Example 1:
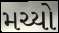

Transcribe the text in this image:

મચ્યો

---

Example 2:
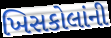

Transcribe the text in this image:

ખિસકોલાંની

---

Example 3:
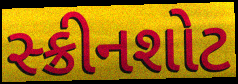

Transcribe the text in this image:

સ્ક્રીનશોટ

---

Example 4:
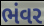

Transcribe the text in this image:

ભંવર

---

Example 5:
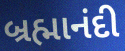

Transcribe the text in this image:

બ્રહ્માનંદી